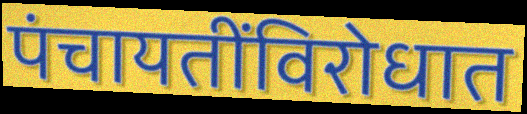
पंचायतींविरोधात